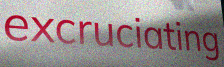
excruciating